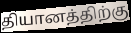
தியானத்திற்கு